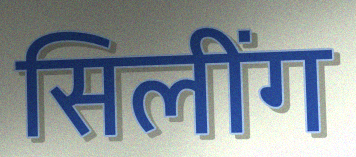
सिलींग